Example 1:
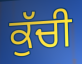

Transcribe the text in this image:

ਕੁੱਚੀ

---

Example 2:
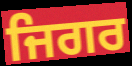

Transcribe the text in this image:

ਜਿਗਰ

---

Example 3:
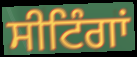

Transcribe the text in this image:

ਸੀਟਿੰਗਾਂ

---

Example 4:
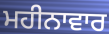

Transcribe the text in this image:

ਮਹੀਨਾਵਾਰ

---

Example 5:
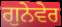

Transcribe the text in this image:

ਗੁਨੇਵੇਰ